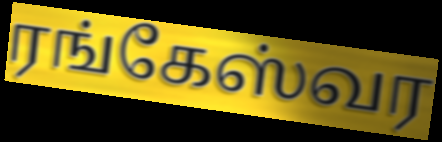
ரங்கேஸ்வர